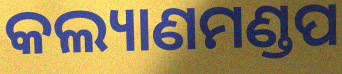
କଲ୍ୟାଣମଣ୍ଡପ